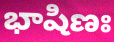
భాషిణః